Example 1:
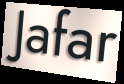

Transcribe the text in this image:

Jafar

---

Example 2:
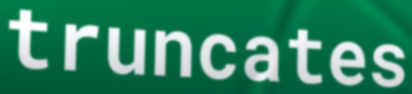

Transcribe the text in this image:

truncates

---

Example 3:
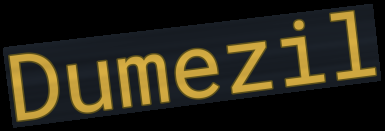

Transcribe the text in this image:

Dumezil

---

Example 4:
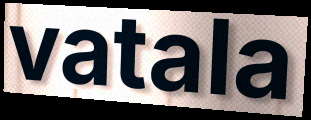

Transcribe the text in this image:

vatala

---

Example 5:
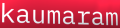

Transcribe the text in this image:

kaumaram